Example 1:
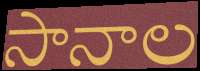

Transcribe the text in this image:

సానాల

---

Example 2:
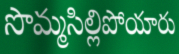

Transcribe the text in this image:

సొమ్మసిల్లిపోయారు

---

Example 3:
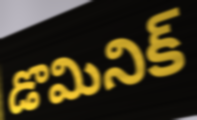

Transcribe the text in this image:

డొమినిక్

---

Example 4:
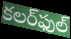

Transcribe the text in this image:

కలర్‌ఫుల్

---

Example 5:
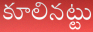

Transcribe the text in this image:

కూలినట్టు